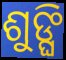
ଶୁଙ୍ଘି